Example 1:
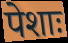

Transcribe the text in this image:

पेशाः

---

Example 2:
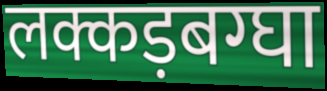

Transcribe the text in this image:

लक्कड़बग्घा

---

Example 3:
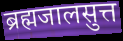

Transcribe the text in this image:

ब्रह्मजालसुत्त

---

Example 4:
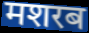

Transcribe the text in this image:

मशरब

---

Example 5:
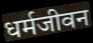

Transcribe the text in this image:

धर्मजीवन